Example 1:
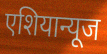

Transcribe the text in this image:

एशियान्यूज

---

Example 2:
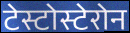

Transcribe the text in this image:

टेस्‍टोस्‍टेरोन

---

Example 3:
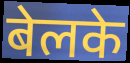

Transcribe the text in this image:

बेलके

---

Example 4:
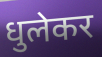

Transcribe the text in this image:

धुलेकर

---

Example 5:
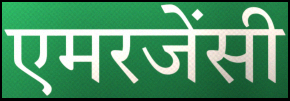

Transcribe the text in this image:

एमरजेंसी